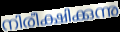
നിരീക്ഷിക്കുന്നു